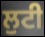
ਲੁਟੀ